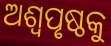
ଅଶ୍ୱପୃଷ୍ଠକୁ